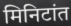
मिनिटांत